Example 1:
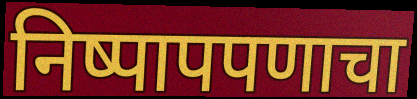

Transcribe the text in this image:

निष्पापपणाचा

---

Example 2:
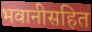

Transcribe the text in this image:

भवानीसहित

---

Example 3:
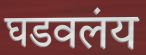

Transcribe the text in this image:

घडवलंय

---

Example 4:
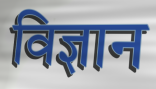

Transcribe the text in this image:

विज्ञान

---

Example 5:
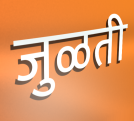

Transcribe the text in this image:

जुळती